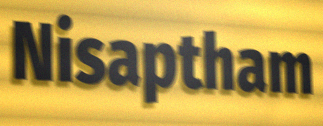
Nisaptham